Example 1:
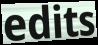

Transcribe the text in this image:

edits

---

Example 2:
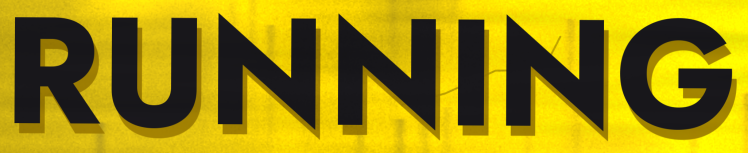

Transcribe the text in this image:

RUNNING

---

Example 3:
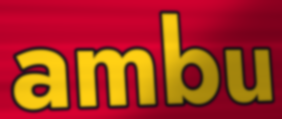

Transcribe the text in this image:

ambu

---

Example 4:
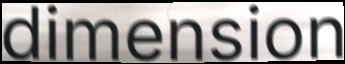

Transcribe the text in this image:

dimension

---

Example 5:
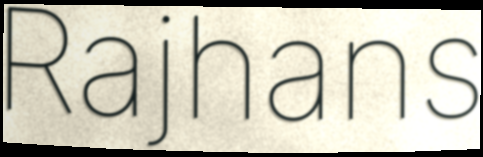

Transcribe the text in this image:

Rajhans